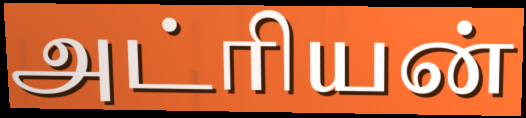
அட்ரியன்